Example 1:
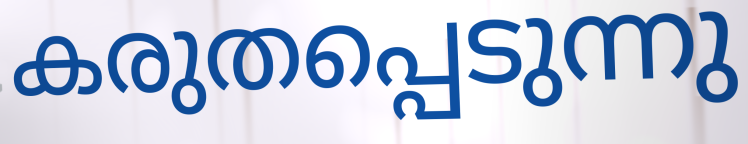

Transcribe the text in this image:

കരുതപ്പെടുന്നു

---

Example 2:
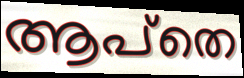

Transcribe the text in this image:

ആപ്‌തെ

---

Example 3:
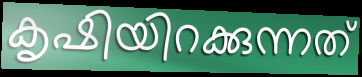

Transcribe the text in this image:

കൃഷിയിറക്കുന്നത്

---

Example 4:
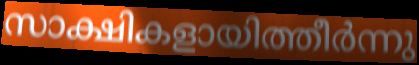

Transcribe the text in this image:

സാക്ഷികളായിത്തീർന്നു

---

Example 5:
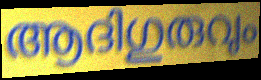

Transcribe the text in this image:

ആദിഗുരുവും